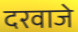
दरवाजे